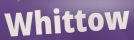
Whittow